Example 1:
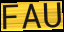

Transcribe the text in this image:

FAU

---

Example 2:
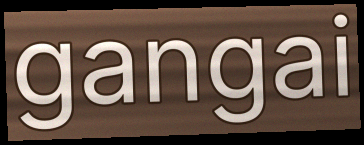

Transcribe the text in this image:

gangai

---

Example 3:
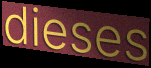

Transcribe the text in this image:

dieses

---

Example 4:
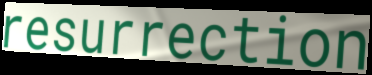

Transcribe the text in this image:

resurrection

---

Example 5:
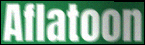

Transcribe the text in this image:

Aflatoon